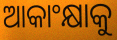
ଆକାଂକ୍ଷାକୁ